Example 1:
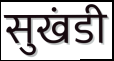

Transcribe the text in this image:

सुखंडी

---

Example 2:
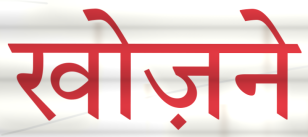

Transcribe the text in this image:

खोज़ने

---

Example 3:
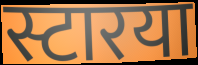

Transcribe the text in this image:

स्टारया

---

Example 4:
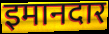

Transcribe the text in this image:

इमानदार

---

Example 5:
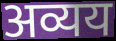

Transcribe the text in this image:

अव्यय